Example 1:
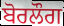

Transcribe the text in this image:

ਬੋਰਲੌਗ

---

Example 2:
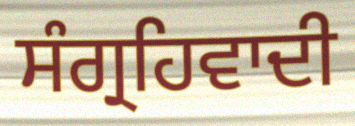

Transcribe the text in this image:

ਸੰਗ੍ਰਹਿਵਾਦੀ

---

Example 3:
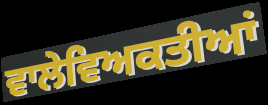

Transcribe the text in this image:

ਵਾਲੇਵਿਅਕਤੀਆਂ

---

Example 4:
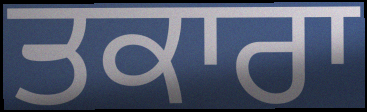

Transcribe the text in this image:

ਤਕਾਰਾ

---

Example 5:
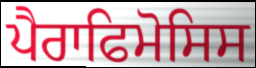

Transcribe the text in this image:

ਪੈਰਾਫਿਮੋਸਿਸ